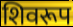
शिवरूप